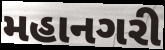
મહાનગરી